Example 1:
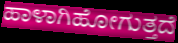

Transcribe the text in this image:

ಹಾಳಾಗಿಹೋಗುತ್ತದೆ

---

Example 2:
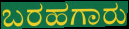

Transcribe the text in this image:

ಬರಹಗಾರು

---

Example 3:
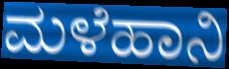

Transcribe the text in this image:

ಮಳೆಹಾನಿ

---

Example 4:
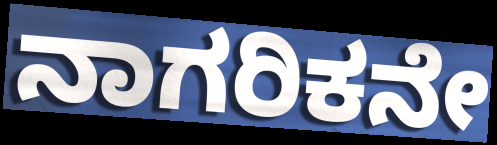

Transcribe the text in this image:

ನಾಗರಿಕನೇ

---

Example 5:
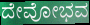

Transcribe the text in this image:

ದೇವೋಭವ